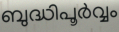
ബുദ്ധിപൂർവ്വം